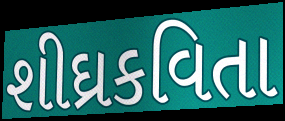
શીઘ્રકવિતા